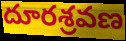
దూరశ్రవణ